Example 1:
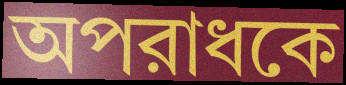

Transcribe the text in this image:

অপরাধকে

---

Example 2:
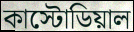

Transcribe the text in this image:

কাস্টোডিয়াল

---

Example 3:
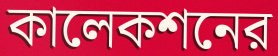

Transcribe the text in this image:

কালেকশনের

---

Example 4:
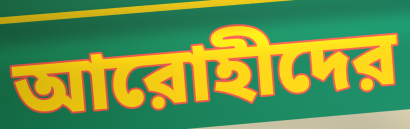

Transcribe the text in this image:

আরোহীদের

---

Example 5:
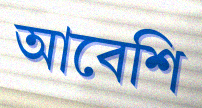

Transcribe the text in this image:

আবেশি